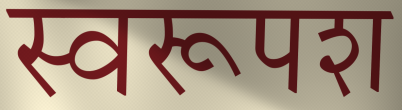
स्वरूपश